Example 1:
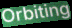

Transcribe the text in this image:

Orbiting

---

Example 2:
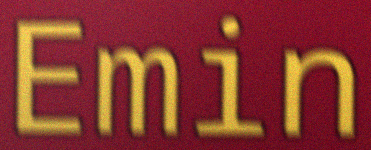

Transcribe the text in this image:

Emin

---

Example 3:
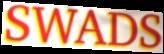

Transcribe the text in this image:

SWADS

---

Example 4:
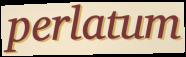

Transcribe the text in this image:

perlatum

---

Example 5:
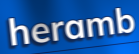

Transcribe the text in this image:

heramb